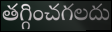
తగ్గించగలదు